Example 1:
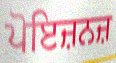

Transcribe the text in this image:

ਪੋਇਜ਼ਨਜ਼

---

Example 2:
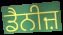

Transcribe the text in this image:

ਡੈਨੀਜ਼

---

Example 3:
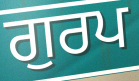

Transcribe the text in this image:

ਗੁਰਪ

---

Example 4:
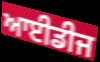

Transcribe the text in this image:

ਆਈਡੀਜ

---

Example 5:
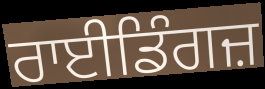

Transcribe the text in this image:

ਰਾਈਡਿੰਗਜ਼